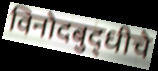
विनोदबुद्धीचे